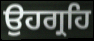
ਉਹਗ੍ਰਹਿ